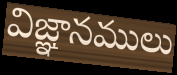
విజ్ఞానములు